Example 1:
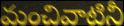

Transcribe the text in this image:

మంచివాటినీ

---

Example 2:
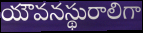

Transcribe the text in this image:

యౌవనస్థురాలిగా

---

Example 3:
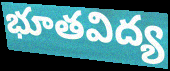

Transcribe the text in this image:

భూతవిద్య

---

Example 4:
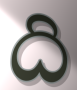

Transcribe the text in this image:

ది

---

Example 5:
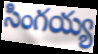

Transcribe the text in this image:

సింగయ్య